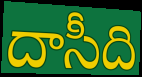
దాసీది